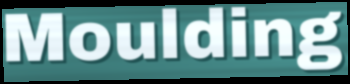
Moulding